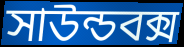
সাউন্ডবক্স